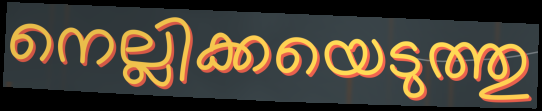
നെല്ലിക്കയെടുത്തു